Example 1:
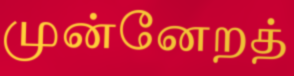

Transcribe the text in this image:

முன்னேறத்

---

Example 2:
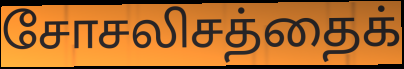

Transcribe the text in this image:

சோசலிசத்தைக்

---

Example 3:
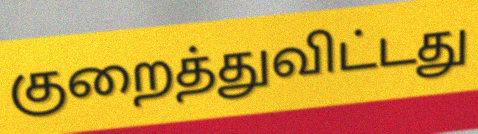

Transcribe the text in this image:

குறைத்துவிட்டது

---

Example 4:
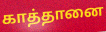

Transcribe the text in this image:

காத்தானை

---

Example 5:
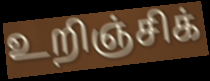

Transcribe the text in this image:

உறிஞ்சிக்